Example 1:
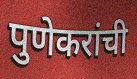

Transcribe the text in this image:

पुणेकरांची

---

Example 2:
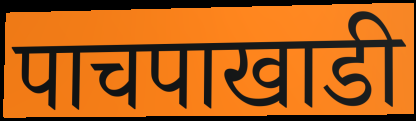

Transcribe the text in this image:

पाचपाखाडी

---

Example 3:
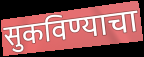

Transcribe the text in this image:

सुकविण्याचा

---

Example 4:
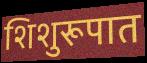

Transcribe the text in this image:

शिशुरूपात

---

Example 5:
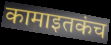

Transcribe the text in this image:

कामाइतकंच